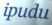
ipudu